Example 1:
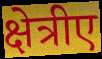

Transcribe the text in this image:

क्षेत्रीए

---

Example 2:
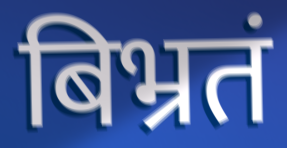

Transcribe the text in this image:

बिभ्रतं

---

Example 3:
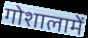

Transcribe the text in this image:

गोशालामें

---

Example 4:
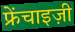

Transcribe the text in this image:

फ्रेंचाइज़ी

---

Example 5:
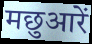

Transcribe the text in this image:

मछुआरें